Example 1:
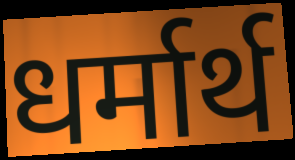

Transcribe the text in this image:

धर्मार्थ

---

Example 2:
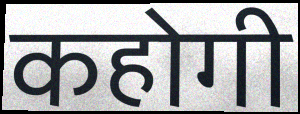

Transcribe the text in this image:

कहोगी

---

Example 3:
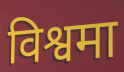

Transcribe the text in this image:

विश्वमा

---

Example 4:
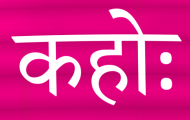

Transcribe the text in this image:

कहोः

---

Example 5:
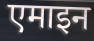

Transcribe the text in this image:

एमाइन